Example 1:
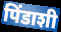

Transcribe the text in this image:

पिंडाशी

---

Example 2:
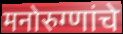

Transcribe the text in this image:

मनोरुग्णांचे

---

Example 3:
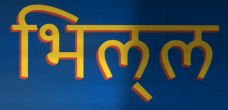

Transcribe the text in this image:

भिल्ल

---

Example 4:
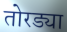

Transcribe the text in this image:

तोरड्या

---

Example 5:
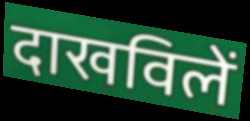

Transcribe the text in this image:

दाखविलें